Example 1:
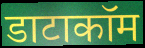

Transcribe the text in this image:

डाटाकॉम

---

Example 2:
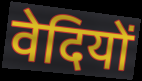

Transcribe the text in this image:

वेदियों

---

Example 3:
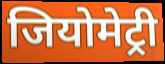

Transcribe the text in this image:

जियोमेट्री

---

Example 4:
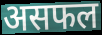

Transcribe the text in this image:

असफल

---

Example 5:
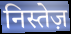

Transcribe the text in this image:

निस्तेज़